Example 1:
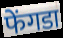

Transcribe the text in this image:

फेंगडा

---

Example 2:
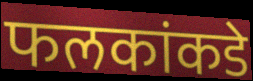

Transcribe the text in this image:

फलकांकडे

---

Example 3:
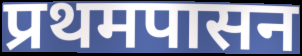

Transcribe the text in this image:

प्रथमपासन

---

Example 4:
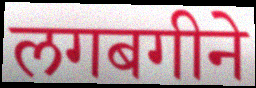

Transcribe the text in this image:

लगबगीने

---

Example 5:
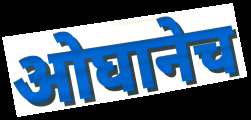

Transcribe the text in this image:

ओघानेच